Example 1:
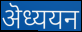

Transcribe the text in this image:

ऄध्ययन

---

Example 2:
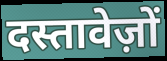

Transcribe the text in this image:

दस्तावेज़ों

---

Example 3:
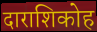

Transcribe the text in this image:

दाराशिकोह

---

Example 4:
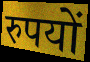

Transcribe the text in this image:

रुपयों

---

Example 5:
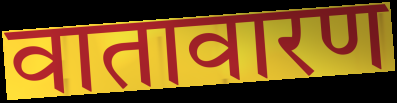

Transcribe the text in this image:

वातावारण